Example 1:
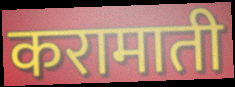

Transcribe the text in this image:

करामाती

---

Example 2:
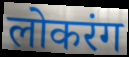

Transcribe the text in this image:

लोकरंग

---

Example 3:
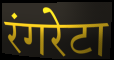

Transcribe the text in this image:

रंगरेटा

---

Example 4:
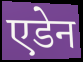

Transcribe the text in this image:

एडेन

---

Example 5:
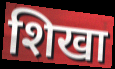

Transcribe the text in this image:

शिखा